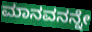
ಮಾನವನನ್ನೇ